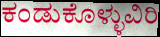
ಕಂಡುಕೊಳ್ಳುವಿರಿ